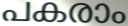
പകരാം